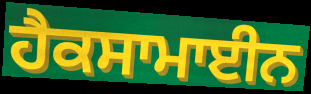
ਹੈਕਸਾਮਾਈਨ